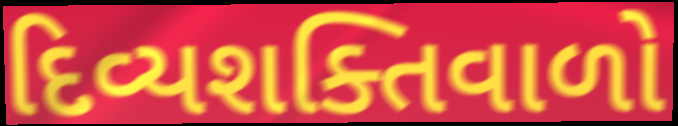
દિવ્યશક્તિવાળો